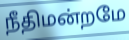
நீதிமன்றமே